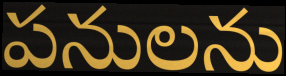
పనులను